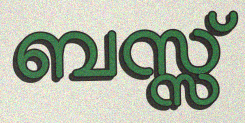
ബസ്സ്